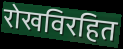
रोखविरहित